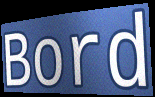
Bord